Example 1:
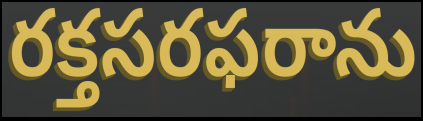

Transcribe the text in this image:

రక్తసరఫరాను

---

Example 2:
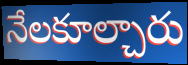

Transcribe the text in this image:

నేలకూల్చారు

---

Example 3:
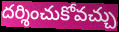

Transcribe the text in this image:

దర్శించుకోవచ్చు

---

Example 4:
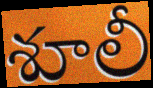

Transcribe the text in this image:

శూలీ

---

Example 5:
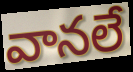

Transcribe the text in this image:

వానలే